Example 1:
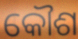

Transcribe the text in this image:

କୌଶ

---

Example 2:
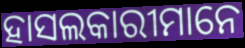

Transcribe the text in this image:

ହାସଲକାରୀମାନେ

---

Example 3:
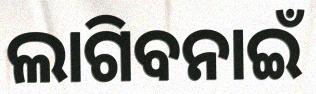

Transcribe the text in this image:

ଲାଗିବନାଇଁ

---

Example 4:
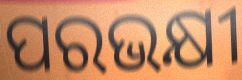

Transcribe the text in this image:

ପରଭକ୍ଷୀ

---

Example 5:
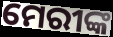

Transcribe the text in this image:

ମେରୀଙ୍କ